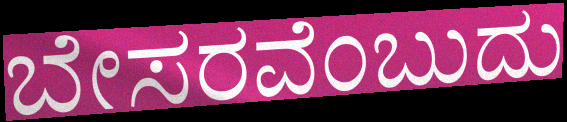
ಬೇಸರವೆಂಬುದು